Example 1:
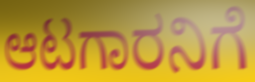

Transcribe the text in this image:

ಆಟಗಾರನಿಗೆ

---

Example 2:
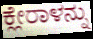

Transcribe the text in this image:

ಕ್ಲೇರಾಳನ್ನು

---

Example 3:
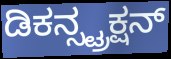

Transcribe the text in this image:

ಡಿಕನ್ಸ್ಟ್ರಕ್ಷನ್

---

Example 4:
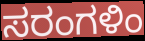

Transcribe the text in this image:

ಸರಂಗಳಿಂ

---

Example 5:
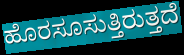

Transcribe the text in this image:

ಹೊರಸೂಸುತ್ತಿರುತ್ತದೆ